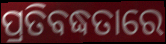
ପ୍ରତିବଦ୍ଧତାରେ